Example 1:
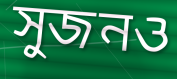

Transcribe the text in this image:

সুজনও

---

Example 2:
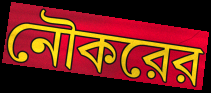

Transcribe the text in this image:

নৌকরের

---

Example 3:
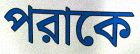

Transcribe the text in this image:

পরাকে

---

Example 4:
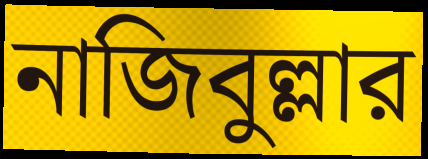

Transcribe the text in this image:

নাজিবুল্লার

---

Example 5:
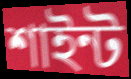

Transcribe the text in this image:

শাইন্ট